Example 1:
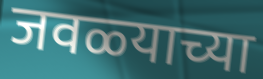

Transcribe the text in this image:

जवळ्याच्या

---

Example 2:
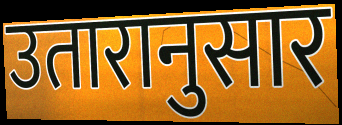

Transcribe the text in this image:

उतारानुसार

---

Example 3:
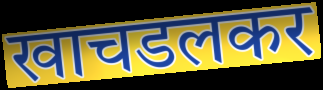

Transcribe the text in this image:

खाचडलकर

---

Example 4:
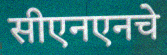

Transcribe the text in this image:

सीएनएनचे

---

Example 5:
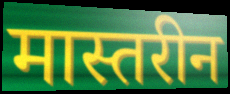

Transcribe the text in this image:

मास्तरीन